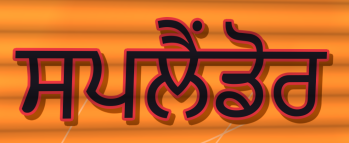
ਸਪਲੈਂਡੋਰ